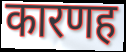
कारणह